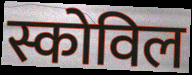
स्कोविल